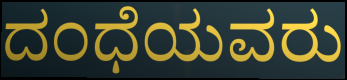
ದಂಧೆಯವರು